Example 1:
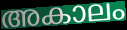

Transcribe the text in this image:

അകാലം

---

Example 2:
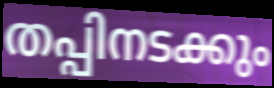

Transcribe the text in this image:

തപ്പിനടക്കും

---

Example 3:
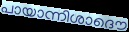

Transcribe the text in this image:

പായാന്നിശാദൌ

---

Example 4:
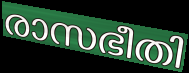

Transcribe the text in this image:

രാസഭീതി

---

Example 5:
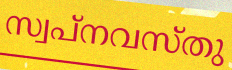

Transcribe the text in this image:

സ്വപ്നവസ്തു